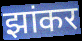
झांकर